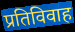
प्रतिविवाह